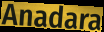
Anadara